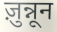
ज़ुन्नून